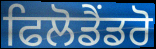
ਫਿਲੋਡੈਂਡਰੋ